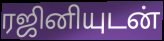
ரஜினியுடன்